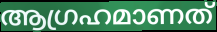
ആഗ്രഹമാണത്